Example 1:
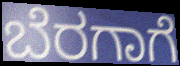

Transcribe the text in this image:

ಬೆರಗಾಗೆ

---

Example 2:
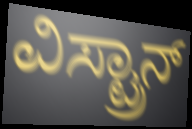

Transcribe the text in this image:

ವಿಸ್ಟ್ರಾನ್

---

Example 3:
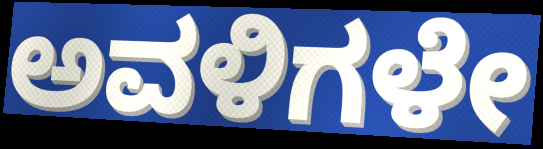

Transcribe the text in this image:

ಅವಳಿಗಳೇ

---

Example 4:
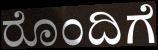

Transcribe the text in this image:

ರೊಂದಿಗೆ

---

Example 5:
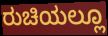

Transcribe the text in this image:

ರುಚಿಯಲ್ಲೂ